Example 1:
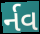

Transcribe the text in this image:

ર્નવ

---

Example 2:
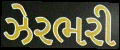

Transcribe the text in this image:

ઝેરભરી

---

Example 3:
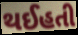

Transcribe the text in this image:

થઈહતી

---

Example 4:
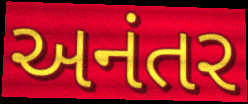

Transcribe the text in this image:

અનંતર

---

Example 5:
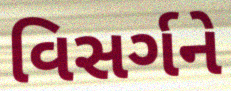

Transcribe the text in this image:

વિસર્ગને